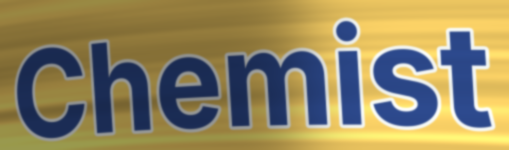
Chemist